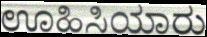
ಊಹಿಸಿಯಾರು